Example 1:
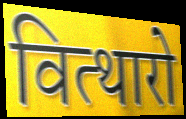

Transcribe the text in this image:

वित्थारो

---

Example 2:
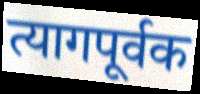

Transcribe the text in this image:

त्यागपूर्वक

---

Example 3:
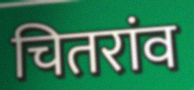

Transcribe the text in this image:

चितरांव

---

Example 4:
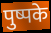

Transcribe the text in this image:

पुष्पके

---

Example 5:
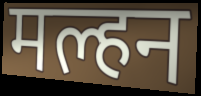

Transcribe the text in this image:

मल्हन